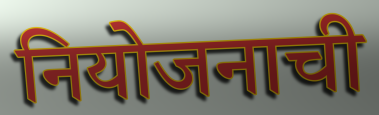
नियोजनाची